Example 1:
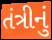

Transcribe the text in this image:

તંત્રીનું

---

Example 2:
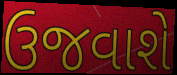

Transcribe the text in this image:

ઉજવાશે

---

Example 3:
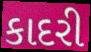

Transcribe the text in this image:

કાદરી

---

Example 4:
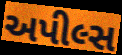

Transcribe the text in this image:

અપીલ્સ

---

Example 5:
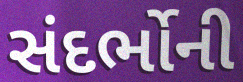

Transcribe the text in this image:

સંદર્ભોની